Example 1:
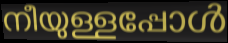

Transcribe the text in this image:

നീയുള്ളപ്പോൾ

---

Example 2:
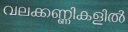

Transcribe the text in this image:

വലക്കണ്ണികളിൽ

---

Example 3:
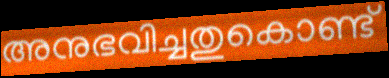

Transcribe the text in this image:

അനുഭവിച്ചതുകൊണ്ട്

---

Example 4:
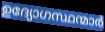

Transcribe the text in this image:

ഉദ്യോഗസ്ഥന്മാർ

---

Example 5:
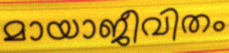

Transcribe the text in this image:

മായാജീവിതം